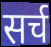
सर्च